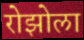
रोझोला